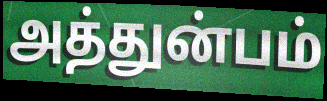
அத்துன்பம்